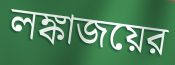
লঙ্কাজয়ের